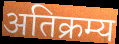
अतिक्रम्य